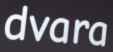
dvara